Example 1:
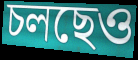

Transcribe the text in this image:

চলছেও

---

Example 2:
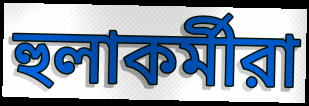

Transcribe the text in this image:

হুলাকর্মীরা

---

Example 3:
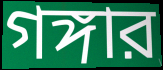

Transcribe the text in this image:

গঙ্গার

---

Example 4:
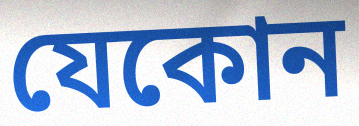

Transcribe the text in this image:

যেকোন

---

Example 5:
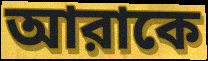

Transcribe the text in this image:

আরাকে